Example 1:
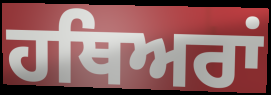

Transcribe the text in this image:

ਹਥਿਅਰਾਂ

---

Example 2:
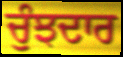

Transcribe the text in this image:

ਚੁੰਝਦਾਰ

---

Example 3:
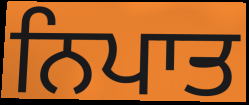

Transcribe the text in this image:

ਨਿਪਾਤ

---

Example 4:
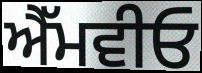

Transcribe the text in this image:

ਐੱਮਵੀਓ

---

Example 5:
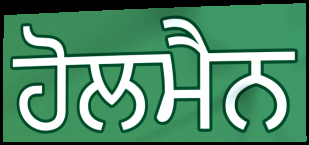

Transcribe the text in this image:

ਹੋਲਮੈਨ